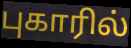
புகாரில்